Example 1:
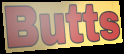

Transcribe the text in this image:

Butts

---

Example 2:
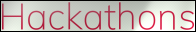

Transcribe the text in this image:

Hackathons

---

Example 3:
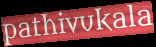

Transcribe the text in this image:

pathivukala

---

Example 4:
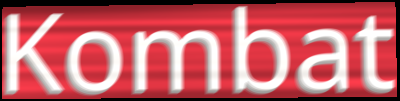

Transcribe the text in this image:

Kombat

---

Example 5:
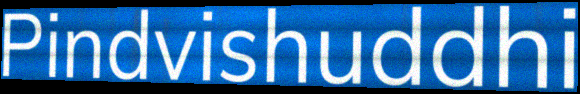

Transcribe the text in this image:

Pindvishuddhi